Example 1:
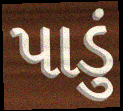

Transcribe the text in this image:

પાડું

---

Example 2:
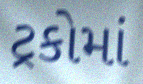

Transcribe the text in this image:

ટ્રકોમાં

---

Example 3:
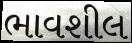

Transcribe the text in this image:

ભાવશીલ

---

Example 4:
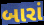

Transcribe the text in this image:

બારાં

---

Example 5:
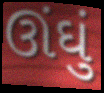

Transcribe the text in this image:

ઊંઘું